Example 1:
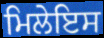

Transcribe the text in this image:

ਮਿਲੇਇਸ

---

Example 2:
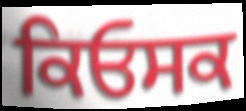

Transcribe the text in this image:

ਕਿਓਸਕ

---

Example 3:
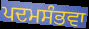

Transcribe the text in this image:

ਪਦਮਸੰਭਵਾ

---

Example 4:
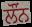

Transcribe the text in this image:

ਲੌਂਨ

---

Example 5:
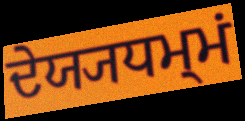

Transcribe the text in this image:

ਦੇਯ੍ਯਧਮ੍ਮਂ